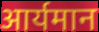
आर्यमान